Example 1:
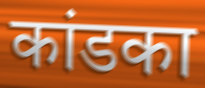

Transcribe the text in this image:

कांडका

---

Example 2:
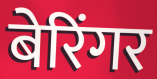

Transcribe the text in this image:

बेरिंगर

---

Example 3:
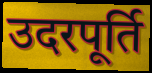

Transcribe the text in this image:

उदरपूर्ति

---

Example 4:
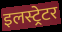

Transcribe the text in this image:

इलस्ट्रेटर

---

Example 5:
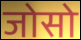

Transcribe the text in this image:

जोसो